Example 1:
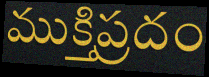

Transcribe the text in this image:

ముక్తిప్రదం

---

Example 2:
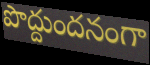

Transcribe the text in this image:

పొద్దుందనంగా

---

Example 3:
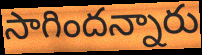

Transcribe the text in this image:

సాగిందన్నారు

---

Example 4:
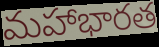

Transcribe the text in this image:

మహాభారత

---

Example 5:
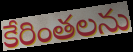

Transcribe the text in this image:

కేరింతలను